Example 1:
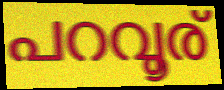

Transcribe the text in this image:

പറവൂര്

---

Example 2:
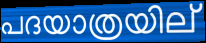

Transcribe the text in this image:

പദയാത്രയില്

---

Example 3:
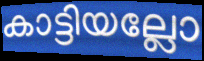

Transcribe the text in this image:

കാട്ടിയല്ലോ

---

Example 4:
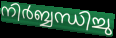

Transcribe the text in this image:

നിർബ്ബന്ധിച്ചു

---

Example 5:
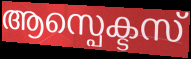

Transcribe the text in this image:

ആസ്പെക്ടസ്